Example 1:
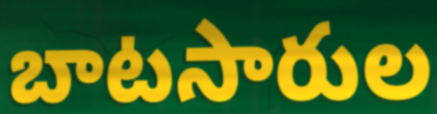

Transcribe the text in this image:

బాటసారుల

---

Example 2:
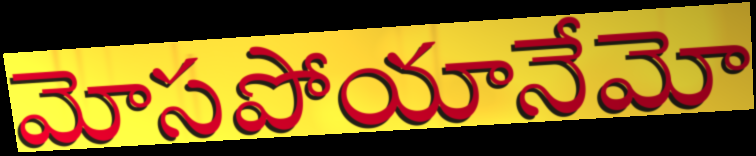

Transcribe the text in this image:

మోసపోయానేమో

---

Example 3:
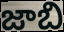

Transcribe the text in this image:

జాబి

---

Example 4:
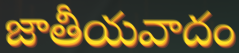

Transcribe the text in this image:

జాతీయవాదం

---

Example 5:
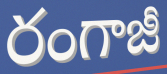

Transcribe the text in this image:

రంగాజీ